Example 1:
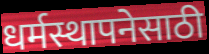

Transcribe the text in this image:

धर्मस्थापनेसाठी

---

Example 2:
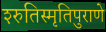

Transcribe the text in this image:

श्रुतिस्मृतिपुराणे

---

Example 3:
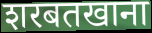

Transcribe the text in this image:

शरबतखाना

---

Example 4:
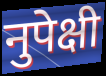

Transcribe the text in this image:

नुपेक्षी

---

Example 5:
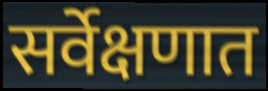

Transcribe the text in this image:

सर्वेक्षणात